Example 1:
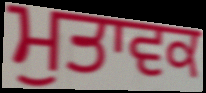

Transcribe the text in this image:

ਮੁਤਾਵਕ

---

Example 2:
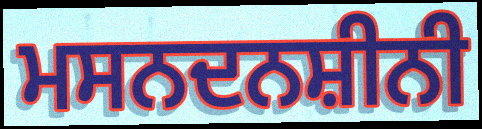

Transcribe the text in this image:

ਮਸਨਦਨਸ਼ੀਨੀ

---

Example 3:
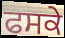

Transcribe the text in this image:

ਫਸਕੇ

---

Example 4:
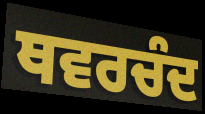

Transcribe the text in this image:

ਥਵਰਚੰਦ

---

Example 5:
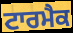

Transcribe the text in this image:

ਟਾਰਮੈਕ